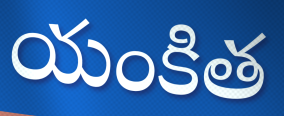
యంకిత